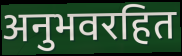
अनुभवरहित